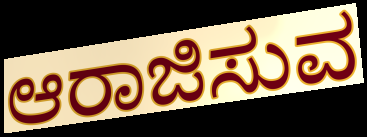
ಆರಾಜಿಸುವ